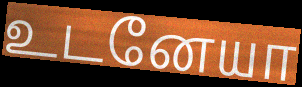
உடனேயா